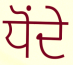
ਧੋਂਦੇ